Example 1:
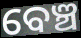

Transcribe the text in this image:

ବେଞ୍ଚ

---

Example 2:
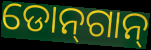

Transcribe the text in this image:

ଡୋନ୍‌ଗାନ୍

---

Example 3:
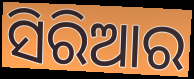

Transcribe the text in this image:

ସିରିଆର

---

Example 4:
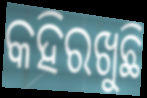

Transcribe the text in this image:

କହିରଖୁଛି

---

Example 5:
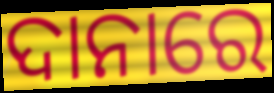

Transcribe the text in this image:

ଦାନାରେ